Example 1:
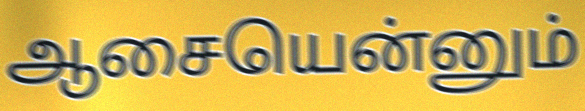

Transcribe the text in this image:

ஆசையென்னும்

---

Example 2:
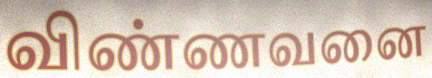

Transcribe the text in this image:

விண்ணவனை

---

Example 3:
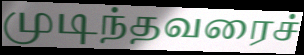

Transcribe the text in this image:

முடிந்தவரைச்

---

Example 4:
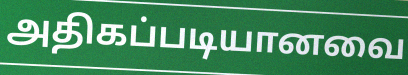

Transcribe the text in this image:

அதிகப்படியானவை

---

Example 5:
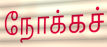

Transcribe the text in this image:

நோக்கச்